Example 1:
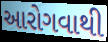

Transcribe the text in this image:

આરોગવાથી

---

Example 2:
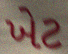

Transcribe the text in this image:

ખેટ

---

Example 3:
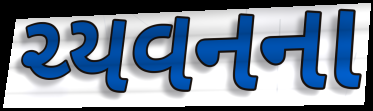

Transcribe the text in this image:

ચ્યવનના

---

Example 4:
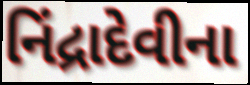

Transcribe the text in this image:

નિંદ્રાદેવીના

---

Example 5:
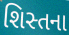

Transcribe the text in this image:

શિસ્તના